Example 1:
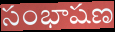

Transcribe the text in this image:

సంభాషణ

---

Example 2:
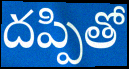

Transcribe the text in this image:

దప్పితో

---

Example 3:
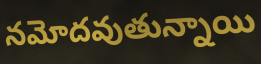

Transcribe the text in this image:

నమోదవుతున్నాయి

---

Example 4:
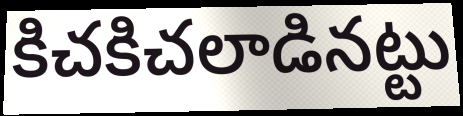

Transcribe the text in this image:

కిచకిచలాడినట్టు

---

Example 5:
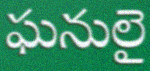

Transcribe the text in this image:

ఘనులై